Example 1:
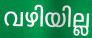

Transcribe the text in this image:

വഴിയില്ല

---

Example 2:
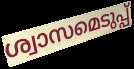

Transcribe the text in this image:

ശ്വാസമെടുപ്പ്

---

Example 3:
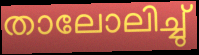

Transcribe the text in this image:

താലോലിച്ചു്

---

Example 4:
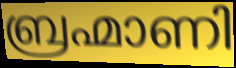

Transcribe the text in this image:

ബ്രഹ്മാണി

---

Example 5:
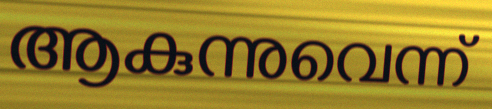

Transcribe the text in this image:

ആകുന്നുവെന്ന്